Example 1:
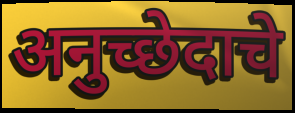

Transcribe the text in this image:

अनुच्छेदाचे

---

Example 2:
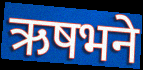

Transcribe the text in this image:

ऋषभने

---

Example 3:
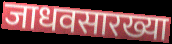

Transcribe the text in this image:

जाधवसारख्या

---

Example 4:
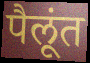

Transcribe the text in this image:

पैलूंत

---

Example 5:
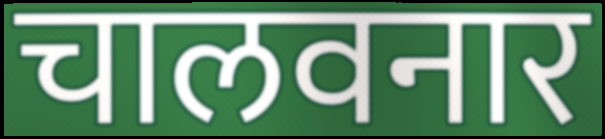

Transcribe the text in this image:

चालवनार